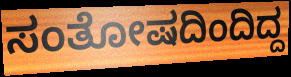
ಸಂತೋಷದಿಂದಿದ್ದ